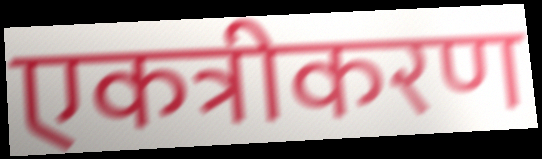
एकत्रीकरण